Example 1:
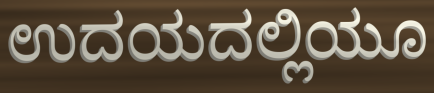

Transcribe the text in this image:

ಉದಯದಲ್ಲಿಯೂ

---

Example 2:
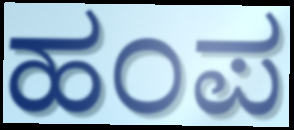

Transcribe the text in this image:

ಹಂಪ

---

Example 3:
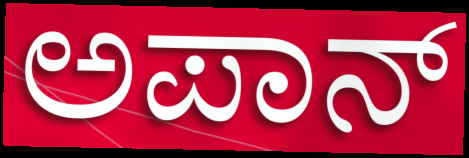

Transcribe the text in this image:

ಅಪಾನ್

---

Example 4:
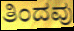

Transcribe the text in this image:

ತಿಂದವು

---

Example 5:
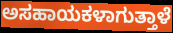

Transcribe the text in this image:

ಅಸಹಾಯಕಳಾಗುತ್ತಾಳೆ